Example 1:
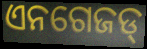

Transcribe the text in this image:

ଏନଗେଜଡ୍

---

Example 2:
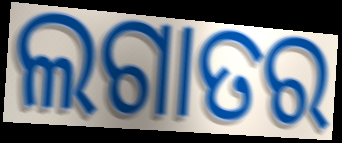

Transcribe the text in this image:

ଲଗାତର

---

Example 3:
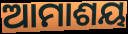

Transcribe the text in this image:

ଆମାଶୟ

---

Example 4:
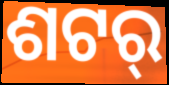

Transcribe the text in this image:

ଶଟର୍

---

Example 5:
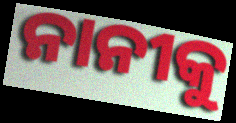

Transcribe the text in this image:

ନାନୀକୁ